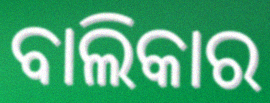
ବାଲିକାର